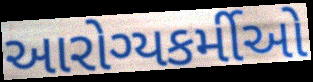
આરોગ્યકર્મીઓ